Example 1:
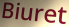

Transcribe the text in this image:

Biuret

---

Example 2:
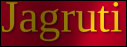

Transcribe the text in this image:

Jagruti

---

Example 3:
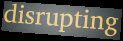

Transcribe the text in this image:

disrupting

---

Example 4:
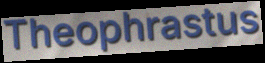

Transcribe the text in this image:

Theophrastus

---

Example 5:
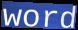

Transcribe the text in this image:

word